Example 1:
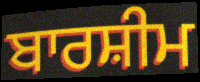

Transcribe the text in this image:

ਬਾਰਸ਼ੀਮ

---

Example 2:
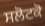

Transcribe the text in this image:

ਸਲੋਟਕੋ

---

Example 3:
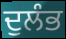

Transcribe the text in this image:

ਦੁਲੰਭ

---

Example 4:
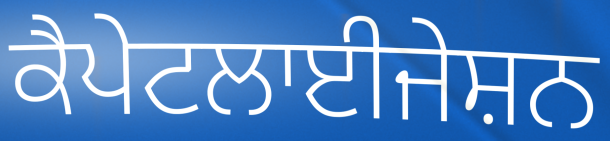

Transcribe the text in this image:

ਕੈਪੇਟਲਾਈਜੇਸ਼ਨ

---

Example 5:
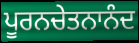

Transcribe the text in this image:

ਪੂਰਨਚੇਤਨਾਨੰਦ